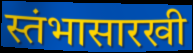
स्तंभासारखी